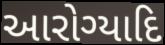
આરોગ્યાદિ